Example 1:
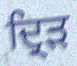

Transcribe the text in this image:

ਦ੍ਰਿੜ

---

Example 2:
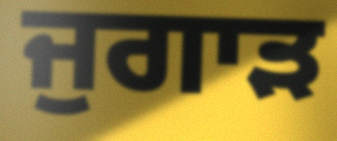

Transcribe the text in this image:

ਜੁਗਾੜ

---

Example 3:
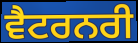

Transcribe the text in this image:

ਵੈਟਰਨਰੀ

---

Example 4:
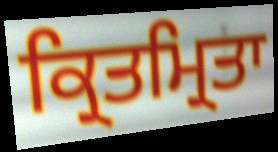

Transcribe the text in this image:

ਕ੍ਰਿਤਮ੍ਰਿਤਾ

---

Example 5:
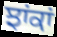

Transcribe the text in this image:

ਝਾਂਕਾਂ